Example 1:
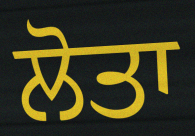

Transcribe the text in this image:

ਲੋਤਾ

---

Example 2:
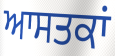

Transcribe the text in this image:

ਆਸਤਕਾਂ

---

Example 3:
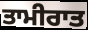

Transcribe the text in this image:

ਤਾਮੀਰਾਤ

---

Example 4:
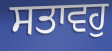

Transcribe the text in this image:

ਸਤਾਵਹੁ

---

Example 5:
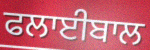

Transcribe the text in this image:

ਫਲਾਈਬਾਲ